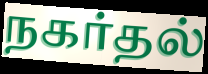
நகர்தல்